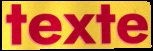
texte